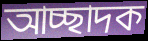
আচ্ছাদক